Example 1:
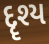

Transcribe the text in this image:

દૄશ્ય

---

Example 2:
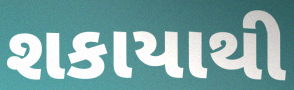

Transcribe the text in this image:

શકાયાથી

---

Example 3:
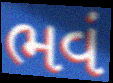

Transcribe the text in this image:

ભવં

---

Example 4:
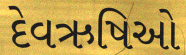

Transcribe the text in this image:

દેવઋષિઓ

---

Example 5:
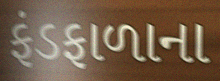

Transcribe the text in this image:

ફંડફાળાના